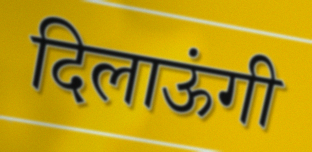
दिलाऊंगी